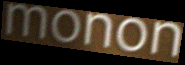
monon